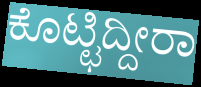
ಕೊಟ್ಟಿದ್ದೀರಾ